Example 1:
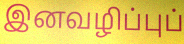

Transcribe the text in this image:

இனவழிப்புப்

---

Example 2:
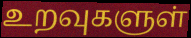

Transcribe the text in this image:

உறவுகளுள்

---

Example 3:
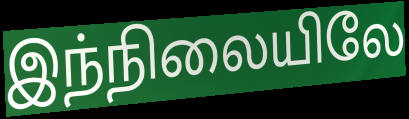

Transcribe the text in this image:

இந்நிலையிலே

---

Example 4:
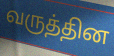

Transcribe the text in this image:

வருத்தின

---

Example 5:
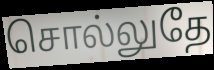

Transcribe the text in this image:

சொல்லுதே